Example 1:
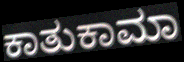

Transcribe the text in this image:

ಕಾತುಕಾಮಾ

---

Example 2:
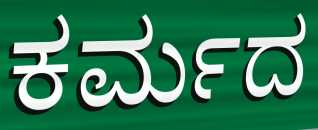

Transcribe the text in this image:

ಕರ್ಮದ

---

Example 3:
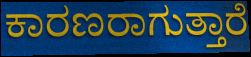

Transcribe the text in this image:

ಕಾರಣರಾಗುತ್ತಾರೆ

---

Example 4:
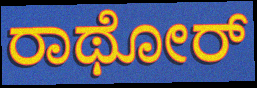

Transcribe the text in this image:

ರಾಥೋರ್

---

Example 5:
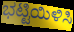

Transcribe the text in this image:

ಭಟ್ಟಿಯಿಳಿಸಿ